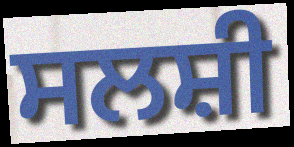
ਸਲਸ਼ੀ